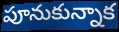
పూనుకున్నాక